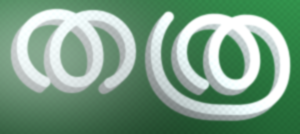
തത്ര